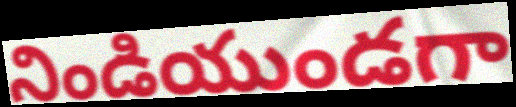
నిండియుండగా